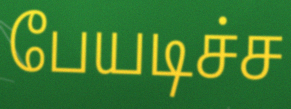
பேயடிச்ச